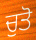
ਚੁਤੋ